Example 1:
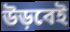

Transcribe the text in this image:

উড়বেই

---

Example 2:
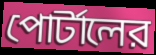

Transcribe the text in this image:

পোর্টালের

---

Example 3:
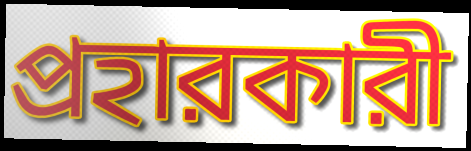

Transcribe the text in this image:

প্রহারকারী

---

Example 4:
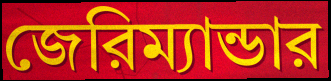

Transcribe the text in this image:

জেরিম্যান্ডার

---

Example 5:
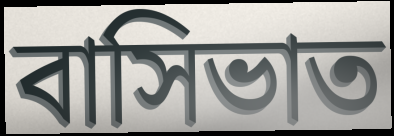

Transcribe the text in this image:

বাসিভাত